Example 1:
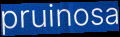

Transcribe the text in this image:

pruinosa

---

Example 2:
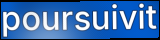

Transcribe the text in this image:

poursuivit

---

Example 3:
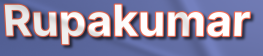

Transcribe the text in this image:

Rupakumar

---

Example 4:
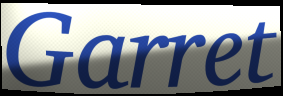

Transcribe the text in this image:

Garret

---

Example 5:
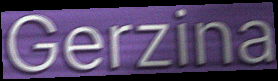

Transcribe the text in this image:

Gerzina